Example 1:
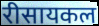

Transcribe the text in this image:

रीसायकल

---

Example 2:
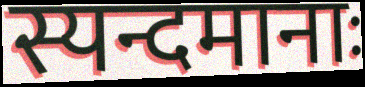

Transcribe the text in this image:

स्यन्दमानाः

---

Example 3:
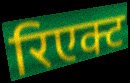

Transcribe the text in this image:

रिएक्ट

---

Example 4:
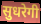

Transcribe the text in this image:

सुधरेगी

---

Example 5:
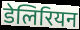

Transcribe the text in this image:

डेलिरियन